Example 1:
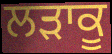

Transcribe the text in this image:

ਲੜਾਕੂ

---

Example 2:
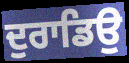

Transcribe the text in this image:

ਦੁਰਾਡਿਉ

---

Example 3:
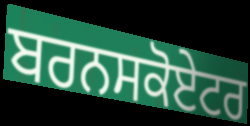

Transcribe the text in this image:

ਬਰਨਸਕੋਏਟਰ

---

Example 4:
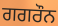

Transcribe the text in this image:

ਗਗਰੌਨ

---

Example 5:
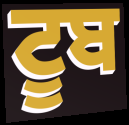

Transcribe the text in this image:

ਟੂਬ